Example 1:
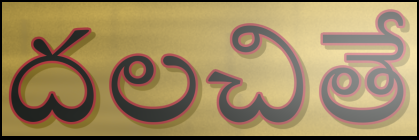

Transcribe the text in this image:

దలచితే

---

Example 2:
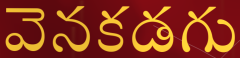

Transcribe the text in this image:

వెనకడగు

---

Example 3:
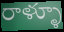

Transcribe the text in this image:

రాళ్ళూ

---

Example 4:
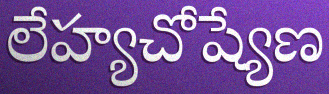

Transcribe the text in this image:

లేహ్యచోష్యేణ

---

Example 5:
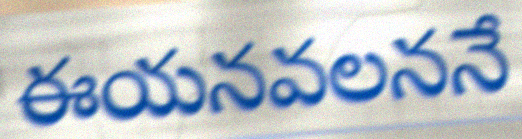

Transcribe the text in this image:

ఈయనవలననే